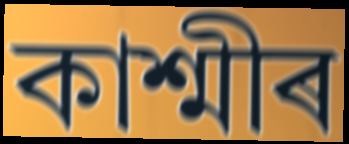
কাশ্মীৰ